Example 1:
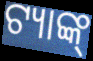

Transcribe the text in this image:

ଟ୍ୟାଙ୍କ୍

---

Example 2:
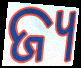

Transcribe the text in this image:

ଜ୍ୟ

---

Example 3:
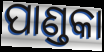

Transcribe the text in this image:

ପାଣ୍ଡକା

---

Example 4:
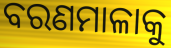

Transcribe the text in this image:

ବରଣମାଳାକୁ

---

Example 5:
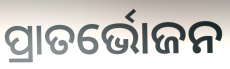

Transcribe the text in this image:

ପ୍ରାତର୍ଭୋଜନ